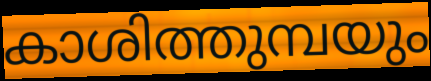
കാശിത്തുമ്പയും